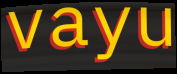
vayu